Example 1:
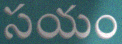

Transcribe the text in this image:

సయం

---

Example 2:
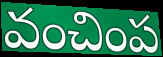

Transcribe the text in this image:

వంచింప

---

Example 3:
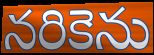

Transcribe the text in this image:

నరికెను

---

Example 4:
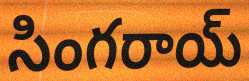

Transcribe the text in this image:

సింగరాయ్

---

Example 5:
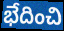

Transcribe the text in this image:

భేదించి